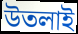
উতলাই